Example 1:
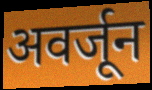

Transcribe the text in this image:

अवर्जून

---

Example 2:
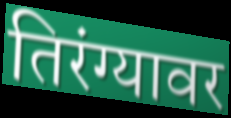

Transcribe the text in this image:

तिरंग्यावर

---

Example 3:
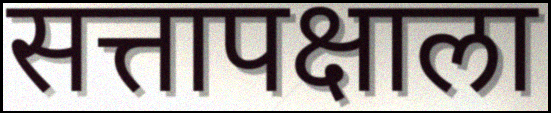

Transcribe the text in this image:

सत्तापक्षाला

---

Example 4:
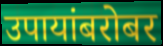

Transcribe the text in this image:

उपायांबरोबर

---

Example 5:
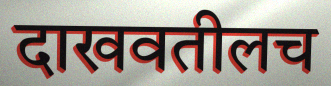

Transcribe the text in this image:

दाखवतीलच